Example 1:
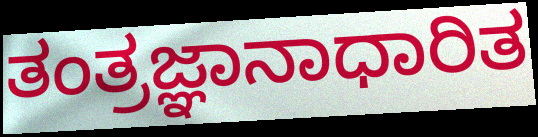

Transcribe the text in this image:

ತಂತ್ರಜ್ಞಾನಾಧಾರಿತ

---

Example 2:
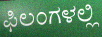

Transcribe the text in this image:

ಫಿಲಂಗಳಲ್ಲಿ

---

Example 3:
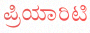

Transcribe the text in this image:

ಪ್ರಿಯಾರಿಟಿ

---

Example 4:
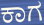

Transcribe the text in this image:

ಕಾಗ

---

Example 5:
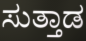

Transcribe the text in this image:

ಸುತ್ತಾಡ